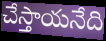
చేస్తాయనేది